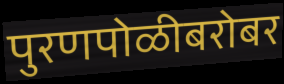
पुरणपोळीबरोबर